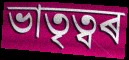
ভাতৃত্বৰ